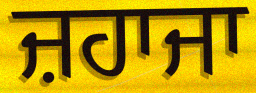
ਜ਼ਹਾਜਾ